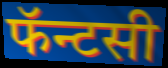
फॅन्टसी